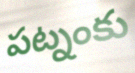
పట్నంకు